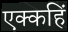
एक्कहिं